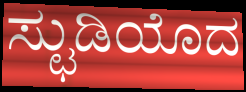
ಸ್ಟುಡಿಯೊದ